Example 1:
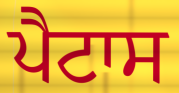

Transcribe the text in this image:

ਪੈਟਾਸ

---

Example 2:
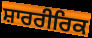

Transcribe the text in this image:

ਸ਼ਾਰਰੀਰਿਕ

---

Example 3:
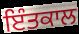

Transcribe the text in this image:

ਇੰਤਕਾਲ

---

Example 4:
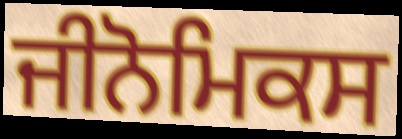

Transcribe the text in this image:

ਜੀਨੋਮਿਕਸ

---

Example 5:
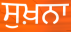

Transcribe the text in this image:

ਸੁਖ਼ਨਾ